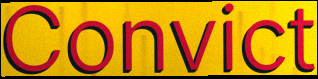
Convict